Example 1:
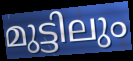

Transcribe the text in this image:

മുട്ടിലും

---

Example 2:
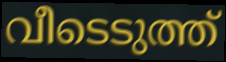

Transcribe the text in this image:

വീടെടുത്ത്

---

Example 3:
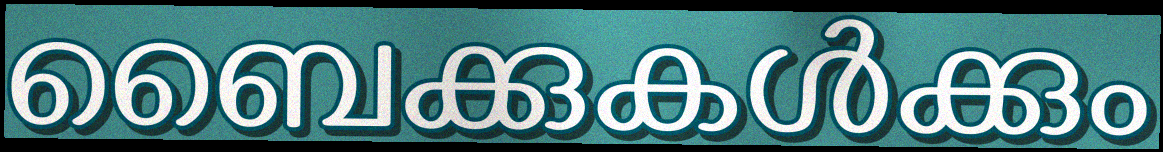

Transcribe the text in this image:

ബൈക്കുകൾക്കും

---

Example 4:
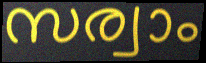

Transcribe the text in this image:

സര്വാം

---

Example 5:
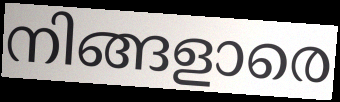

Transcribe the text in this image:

നിങ്ങളാരെ